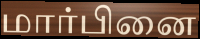
மார்பினை